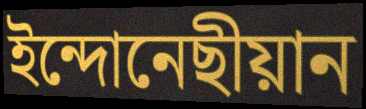
ইন্দোনেছীয়ান